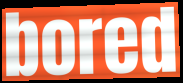
bored